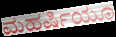
ಮಹರ್ಷಿಯೂ